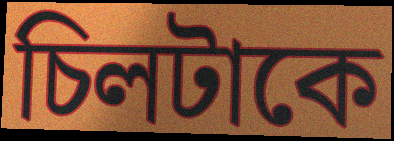
চিলটাকে